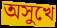
অসুখে